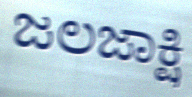
ಜಲಜಾಕ್ಷಿ